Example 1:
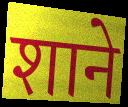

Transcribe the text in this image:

शाने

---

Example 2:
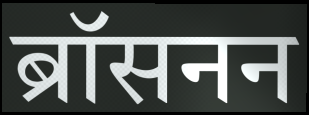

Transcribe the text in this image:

ब्रॉसनन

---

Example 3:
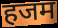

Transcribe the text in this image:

हजम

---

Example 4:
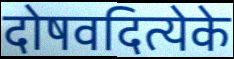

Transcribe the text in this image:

दोषवदित्येके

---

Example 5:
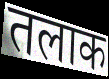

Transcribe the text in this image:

तलाक